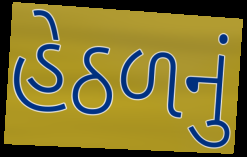
હેઠળનું